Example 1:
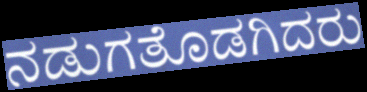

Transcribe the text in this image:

ನಡುಗತೊಡಗಿದರು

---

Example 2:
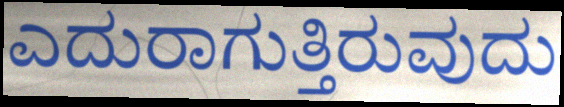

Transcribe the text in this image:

ಎದುರಾಗುತ್ತಿರುವುದು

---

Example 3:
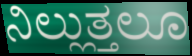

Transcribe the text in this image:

ನಿಲ್ಲುತ್ತಲೂ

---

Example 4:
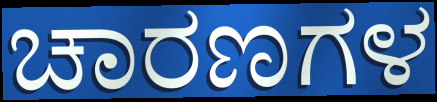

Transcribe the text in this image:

ಚಾರಣಗಳ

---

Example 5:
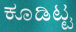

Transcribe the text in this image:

ಕೂಡಿಟ್ಟ